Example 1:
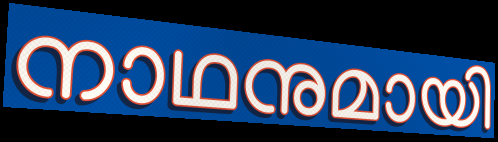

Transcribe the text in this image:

നാഥനുമായി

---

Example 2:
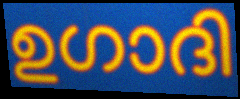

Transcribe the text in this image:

ഉഗാദി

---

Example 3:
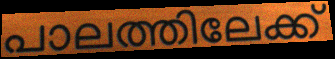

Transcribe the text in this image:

പാലത്തിലേക്ക്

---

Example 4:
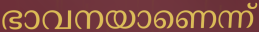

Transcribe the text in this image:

ഭാവനയാണെന്ന്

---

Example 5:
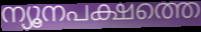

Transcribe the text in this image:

ന്യൂനപക്ഷത്തെ